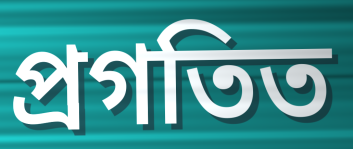
প্ৰগতিত